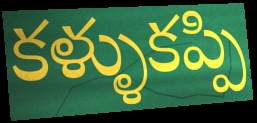
కళ్ళుకప్పి